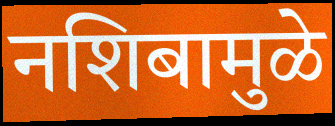
नशिबामुळे